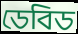
ডেবিড